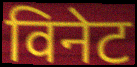
विनेट